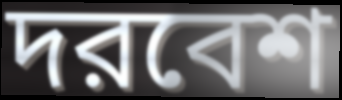
দরবেশ